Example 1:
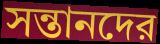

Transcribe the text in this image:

সন্তানদের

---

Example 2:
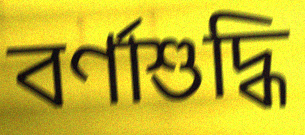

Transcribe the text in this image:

বর্ণাশুদ্ধি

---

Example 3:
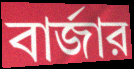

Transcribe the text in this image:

বার্জার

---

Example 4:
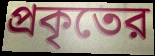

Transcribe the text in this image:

প্রকৃতের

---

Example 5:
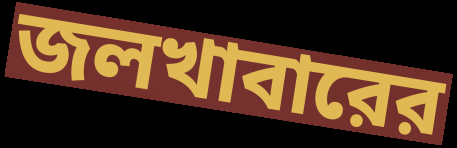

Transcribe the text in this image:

জলখাবারের